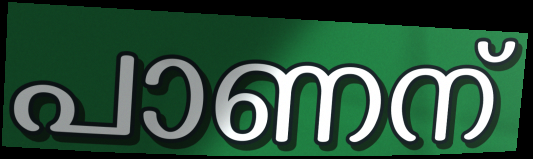
പാണന്